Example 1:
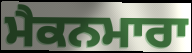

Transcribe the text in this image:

ਮੈਕਨਮਾਰਾ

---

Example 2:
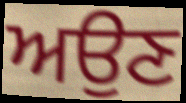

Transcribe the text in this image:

ਅਉਣ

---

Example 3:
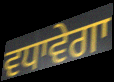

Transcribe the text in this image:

ਵਧਾਵੇਗਾ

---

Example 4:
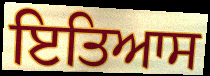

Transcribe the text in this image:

ਇਤਿਆਸ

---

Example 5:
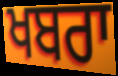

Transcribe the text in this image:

ਖਬਰਾ